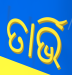
ତାର୍ଭି